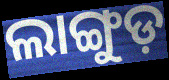
ଲାଙ୍ଗୁଡ଼